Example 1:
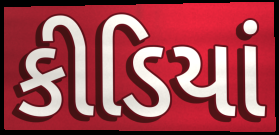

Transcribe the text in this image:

કીડિયાં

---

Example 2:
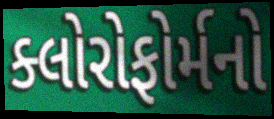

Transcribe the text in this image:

ક્લોરોફોર્મનો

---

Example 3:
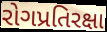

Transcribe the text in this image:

રોગપ્રતિરક્ષા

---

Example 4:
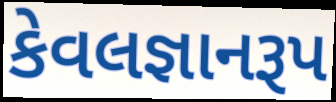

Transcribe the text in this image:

કેવલજ્ઞાનરૂપ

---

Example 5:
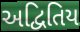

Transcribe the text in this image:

અદ્વિતિય